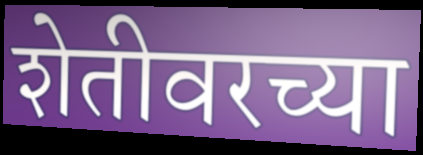
शेतीवरच्या